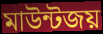
মাউন্টজয়